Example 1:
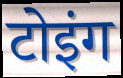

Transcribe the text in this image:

टोइंग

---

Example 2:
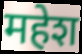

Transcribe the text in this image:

महेश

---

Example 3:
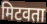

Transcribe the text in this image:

मिटवता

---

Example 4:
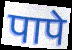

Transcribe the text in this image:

पापे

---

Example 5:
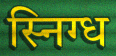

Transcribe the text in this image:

स्‍निग्ध